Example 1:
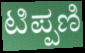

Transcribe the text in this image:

ಟಿಪ್ಪಣಿ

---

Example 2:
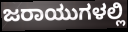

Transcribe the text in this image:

ಜರಾಯುಗಳಲ್ಲಿ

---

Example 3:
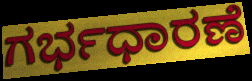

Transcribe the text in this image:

ಗರ್ಭಧಾರಣೆ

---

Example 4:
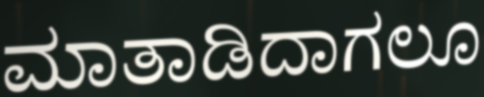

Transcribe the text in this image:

ಮಾತಾಡಿದಾಗಲೂ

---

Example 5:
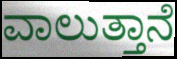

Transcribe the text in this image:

ವಾಲುತ್ತಾನೆ